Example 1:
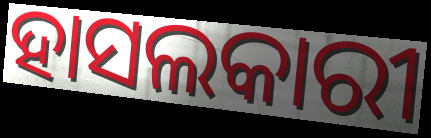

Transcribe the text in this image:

ହାସଲକାରୀ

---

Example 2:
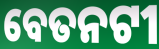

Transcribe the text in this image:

ବେତନଟୀ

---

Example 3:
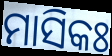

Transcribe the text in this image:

ମାସିକଃ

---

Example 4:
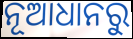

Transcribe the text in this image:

ନୂଆଧାନରୁ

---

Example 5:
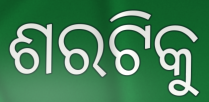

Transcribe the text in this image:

ଶରଟିକୁ